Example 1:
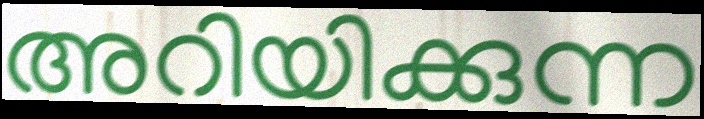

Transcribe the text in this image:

അറിയിക്കുന്ന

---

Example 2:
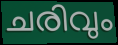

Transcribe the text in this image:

ചരിവും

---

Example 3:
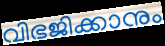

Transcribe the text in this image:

വിഭജിക്കാനും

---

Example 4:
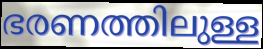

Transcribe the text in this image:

ഭരണത്തിലുള്ള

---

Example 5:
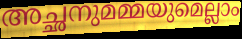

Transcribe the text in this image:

അച്ഛനുമമ്മയുമെല്ലാം